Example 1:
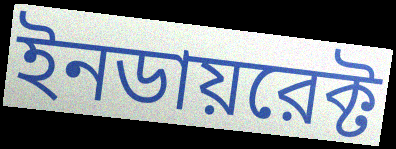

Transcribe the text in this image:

ইনডায়রেক্ট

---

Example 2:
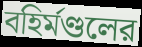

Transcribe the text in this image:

বহির্মণ্ডলের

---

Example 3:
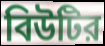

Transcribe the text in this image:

বিউটির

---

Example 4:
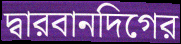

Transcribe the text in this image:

দ্বারবানদিগের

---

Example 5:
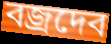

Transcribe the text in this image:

বজ্রদেব